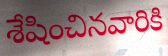
శేషించినవారికి